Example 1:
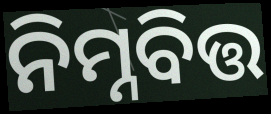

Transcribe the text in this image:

ନିମ୍ନବିତ୍ତ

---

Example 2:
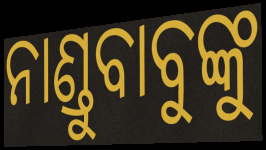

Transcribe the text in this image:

ନାଣ୍ଡୁବାବୁଙ୍କୁ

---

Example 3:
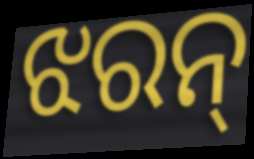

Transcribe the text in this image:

ଝରନ୍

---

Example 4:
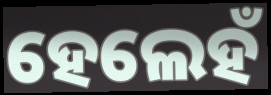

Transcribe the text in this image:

ହେଲେହଁ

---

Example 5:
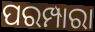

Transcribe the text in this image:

ପରମ୍ପାରା